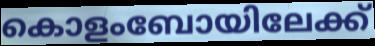
കൊളംബോയിലേക്ക്